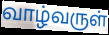
வாழ்வருள்